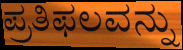
ಪ್ರತಿಫಲವನ್ನು